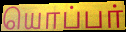
யொப்பர்